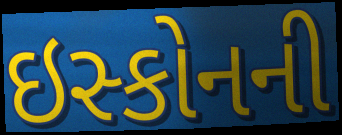
ઇસ્કોનની